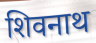
शिवनाथ